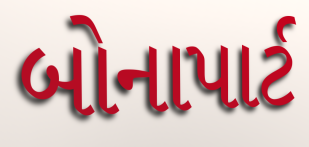
બોનાપાર્ટ